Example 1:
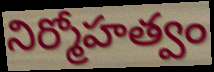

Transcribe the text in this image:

నిర్మోహత్వం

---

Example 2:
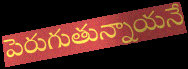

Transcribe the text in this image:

పెరుగుతున్నాయనే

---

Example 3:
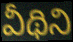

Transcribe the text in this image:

వీథిని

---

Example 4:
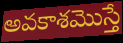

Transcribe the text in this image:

అవకాశమొస్తే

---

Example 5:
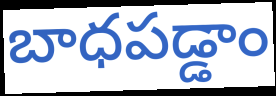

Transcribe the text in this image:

బాధపడ్డాం